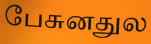
பேசுனதுல